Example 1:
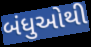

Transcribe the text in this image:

બંધુઓથી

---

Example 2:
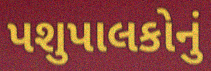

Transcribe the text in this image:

પશુપાલકોનું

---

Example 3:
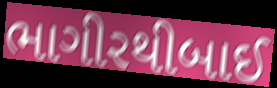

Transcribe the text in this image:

ભાગીરથીબાઈ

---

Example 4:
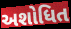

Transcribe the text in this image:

અશોધિત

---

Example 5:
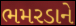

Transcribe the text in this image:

ભમરડાને